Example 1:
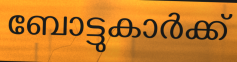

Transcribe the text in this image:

ബോട്ടുകാർക്ക്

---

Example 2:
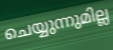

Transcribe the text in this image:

ചെയ്യുന്നുമില്ല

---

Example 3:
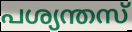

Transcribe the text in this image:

പശ്യന്തസ്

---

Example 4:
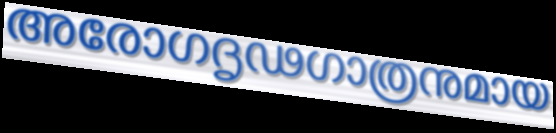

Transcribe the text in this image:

അരോഗദൃഢഗാത്രനുമായ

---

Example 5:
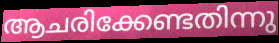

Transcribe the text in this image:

ആചരിക്കേണ്ടതിന്നു